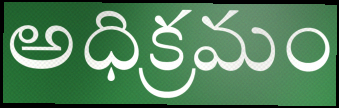
అధిక్రమం